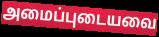
அமைப்புடையவை